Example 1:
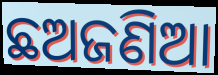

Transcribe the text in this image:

ଛଅଜଣିଆ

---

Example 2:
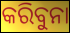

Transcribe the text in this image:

କରିବୁନା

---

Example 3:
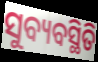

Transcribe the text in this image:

ସୁବ୍ୟବସ୍ଥିତି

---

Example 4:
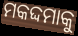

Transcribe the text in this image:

ମକଦ୍ଦମାକୁ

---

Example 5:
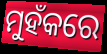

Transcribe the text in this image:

ମୁହଁକରେ